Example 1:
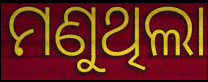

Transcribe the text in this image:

ମଣୁଥିଲା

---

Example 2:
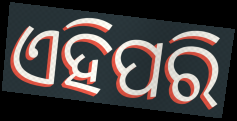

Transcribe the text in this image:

ଏହିପରି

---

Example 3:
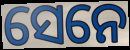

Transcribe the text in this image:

ସେନେ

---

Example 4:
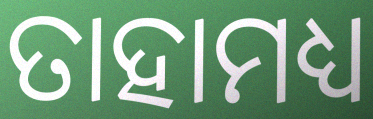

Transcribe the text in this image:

ତାହାମଧ୍ୟ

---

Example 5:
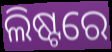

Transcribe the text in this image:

ଲିଷ୍ଟରେ